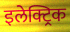
इलेक्ट्रिक